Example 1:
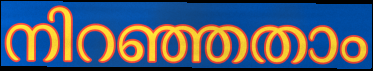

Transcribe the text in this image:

നിറഞ്ഞതാം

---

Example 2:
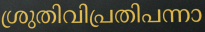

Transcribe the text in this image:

ശ്രുതിവിപ്രതിപന്നാ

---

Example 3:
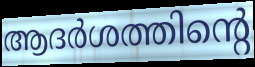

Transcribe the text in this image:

ആദർശത്തിന്റെ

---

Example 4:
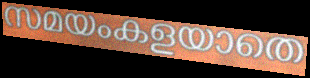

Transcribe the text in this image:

സമയംകളയാതെ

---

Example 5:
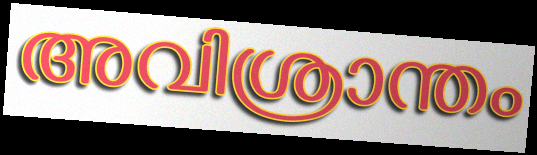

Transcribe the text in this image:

അവിശ്രാന്തം